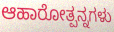
ಆಹಾರೋತ್ಪನ್ನಗಳು